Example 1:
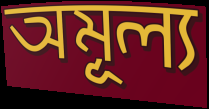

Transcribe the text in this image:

অমূল্য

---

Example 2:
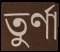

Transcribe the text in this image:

তুর্ণা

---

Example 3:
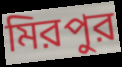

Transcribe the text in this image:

মিরপুর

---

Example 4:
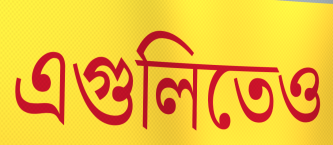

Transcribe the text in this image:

এগুলিতেও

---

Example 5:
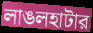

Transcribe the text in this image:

লাঙলহাটার